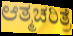
ಆತ್ಮಚರಿತ್ರೆ